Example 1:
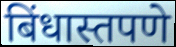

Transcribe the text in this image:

बिंधास्तपणे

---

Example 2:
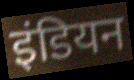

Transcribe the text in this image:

इंडियन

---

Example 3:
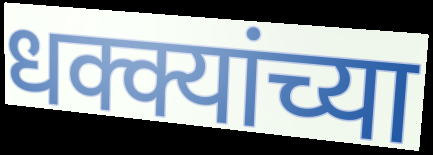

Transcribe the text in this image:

धक्क्यांच्या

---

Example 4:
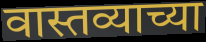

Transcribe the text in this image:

वास्तव्याच्या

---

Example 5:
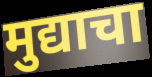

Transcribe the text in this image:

मुद्याचा